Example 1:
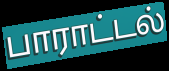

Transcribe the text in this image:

பாராட்டல்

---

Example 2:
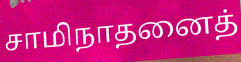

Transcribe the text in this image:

சாமிநாதனைத்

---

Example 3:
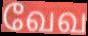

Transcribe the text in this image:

வேவ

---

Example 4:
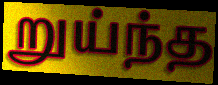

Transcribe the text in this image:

றுய்ந்த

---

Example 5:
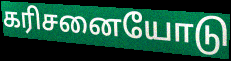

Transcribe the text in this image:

கரிசனையோடு